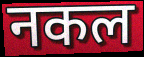
नकल